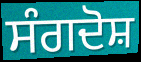
ਸੰਗਦੋਸ਼